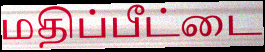
மதிப்பீட்டை